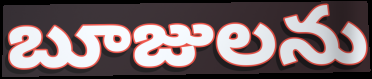
బూజులను